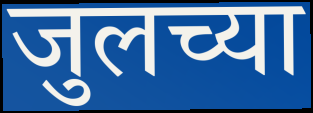
जुलच्या